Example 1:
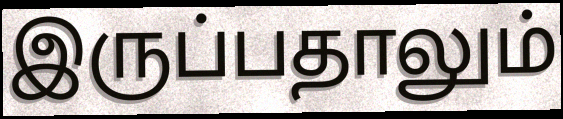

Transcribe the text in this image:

இருப்பதாலும்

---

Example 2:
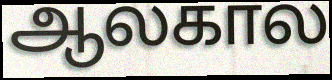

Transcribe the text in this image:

ஆலகால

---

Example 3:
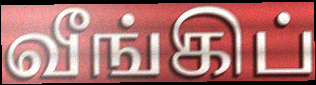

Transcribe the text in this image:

வீங்கிப்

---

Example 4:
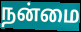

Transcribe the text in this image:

நன்மை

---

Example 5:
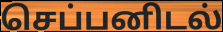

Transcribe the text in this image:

செப்பனிடல்